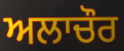
ਅਲਾਚੌਰ